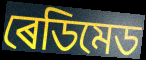
ৰেডিমেড